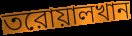
তরোয়ালখান